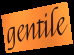
gentile